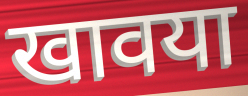
खावया